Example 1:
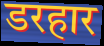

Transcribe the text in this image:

डरहार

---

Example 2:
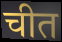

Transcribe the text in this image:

चीत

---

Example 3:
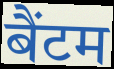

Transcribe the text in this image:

बैंटम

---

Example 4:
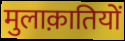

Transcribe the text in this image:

मुलाक़ातियों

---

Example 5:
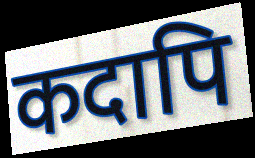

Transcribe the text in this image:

कदापि